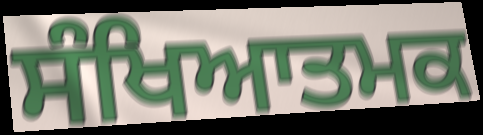
ਸੰਖਿਆਤਮਕ